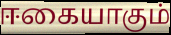
ஈகையாகும்